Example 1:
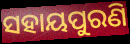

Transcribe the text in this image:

ସହାୟପୁରଣି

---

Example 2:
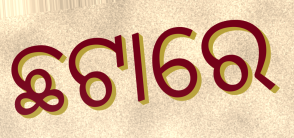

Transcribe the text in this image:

ଛଟାରେ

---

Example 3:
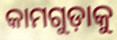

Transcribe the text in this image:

କାମଗୁଡ଼ାକୁ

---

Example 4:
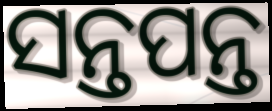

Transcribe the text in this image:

ସନ୍ତପନ୍ତ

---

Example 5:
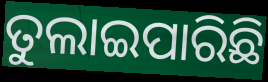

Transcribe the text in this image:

ତୁଲାଇପାରିଛି